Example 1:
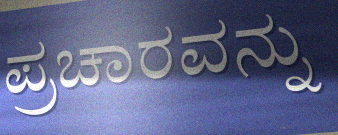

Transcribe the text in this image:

ಪ್ರಚಾರವನ್ನು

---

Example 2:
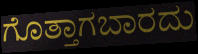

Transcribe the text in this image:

ಗೊತ್ತಾಗಬಾರದು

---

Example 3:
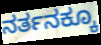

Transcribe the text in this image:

ನರ್ತನಕ್ಕೂ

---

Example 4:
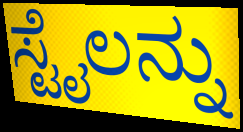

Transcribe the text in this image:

ಸ್ಟೈಲನ್ನು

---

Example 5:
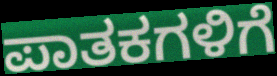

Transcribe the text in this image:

ಪಾತಕಗಳಿಗೆ